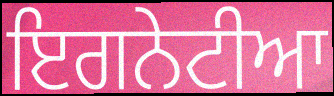
ਇਗਨੇਟੀਆ